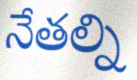
నేతల్ని